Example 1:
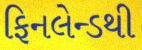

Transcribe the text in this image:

ફિનલેન્ડથી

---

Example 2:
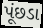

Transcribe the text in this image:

પૂંછડા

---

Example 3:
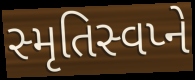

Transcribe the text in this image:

સ્મૃતિસ્વપ્ને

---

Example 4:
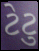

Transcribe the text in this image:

ટેટુ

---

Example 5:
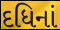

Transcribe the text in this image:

દધિનાં